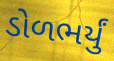
ડોળભર્યું